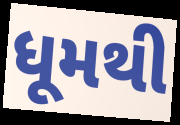
ધૂમથી